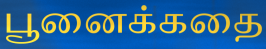
பூனைக்கதை